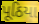
પૂઠિયા